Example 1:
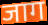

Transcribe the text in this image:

जाग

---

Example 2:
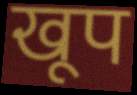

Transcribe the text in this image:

खूप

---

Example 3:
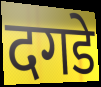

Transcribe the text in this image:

दगडे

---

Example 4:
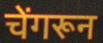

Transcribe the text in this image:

चेंगरून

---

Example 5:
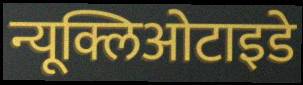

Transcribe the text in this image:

न्यूक्लिओटाइडे